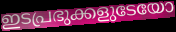
ഇടപ്രഭുക്കളുടേയോ